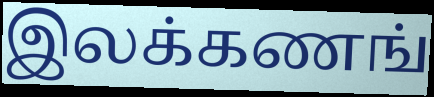
இலக்கணங்